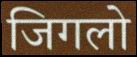
जिगलो